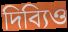
দিব্যিও